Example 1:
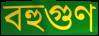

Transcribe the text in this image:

বহুগুণ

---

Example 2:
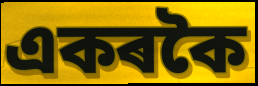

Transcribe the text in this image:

একৰকৈ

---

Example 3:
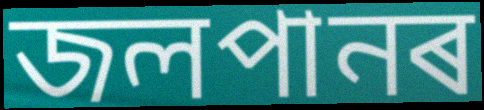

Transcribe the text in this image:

জলপানৰ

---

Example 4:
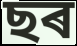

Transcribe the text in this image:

ছৰ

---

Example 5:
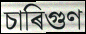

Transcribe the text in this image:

চাৰিগুণ